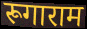
रूगाराम